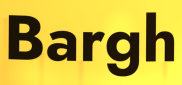
Bargh